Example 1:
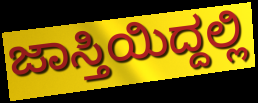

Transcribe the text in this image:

ಜಾಸ್ತಿಯಿದ್ದಲ್ಲಿ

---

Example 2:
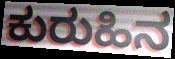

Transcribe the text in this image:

ಕುರುಹಿನ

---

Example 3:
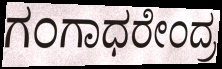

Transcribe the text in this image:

ಗಂಗಾಧರೇಂದ್ರ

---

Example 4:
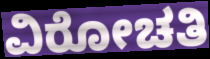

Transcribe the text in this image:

ವಿರೋಚತಿ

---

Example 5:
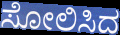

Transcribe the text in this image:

ಸೋಲಿಸಿದ